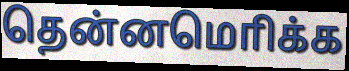
தென்னமெரிக்க